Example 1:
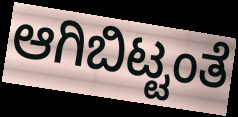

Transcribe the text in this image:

ಆಗಿಬಿಟ್ಟಂತೆ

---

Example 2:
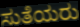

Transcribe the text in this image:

ಸುತೆಯರು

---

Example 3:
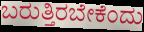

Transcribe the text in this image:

ಬರುತ್ತಿರಬೇಕೆಂದು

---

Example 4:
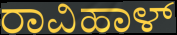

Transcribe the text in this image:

ರಾವಿಹಾಳ್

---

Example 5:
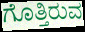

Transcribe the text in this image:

ಗೊತ್ತಿರುವ